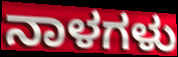
ನಾಳಗಳು